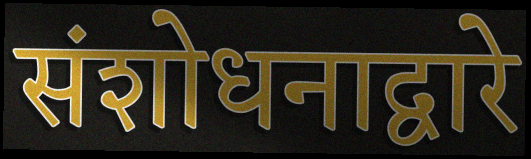
संशोधनाद्वारे